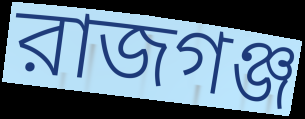
রাজগঞ্জ